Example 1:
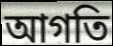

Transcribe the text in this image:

আগতি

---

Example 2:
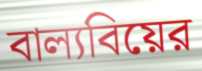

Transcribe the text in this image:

বাল্যবিয়ের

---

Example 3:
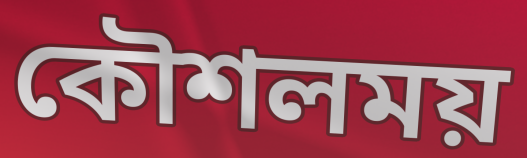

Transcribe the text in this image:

কৌশলময়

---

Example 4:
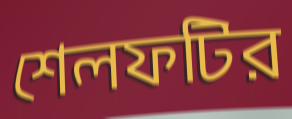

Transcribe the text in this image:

শেলফটির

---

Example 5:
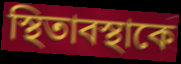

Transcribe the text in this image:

স্থিতাবস্থাকে